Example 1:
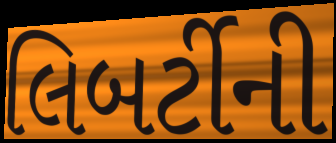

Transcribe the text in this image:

લિબર્ટીની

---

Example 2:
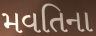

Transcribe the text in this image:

મવતિના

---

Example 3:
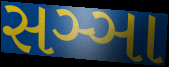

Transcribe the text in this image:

સઞ્ઞા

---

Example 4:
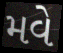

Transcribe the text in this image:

મવે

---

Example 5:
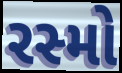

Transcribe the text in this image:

રસ્મો